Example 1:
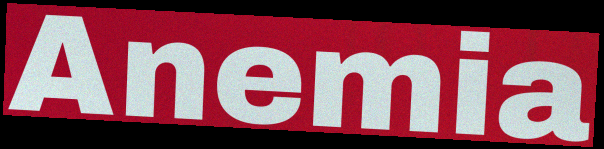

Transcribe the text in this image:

Anemia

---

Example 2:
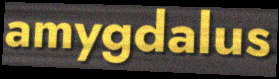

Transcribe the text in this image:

amygdalus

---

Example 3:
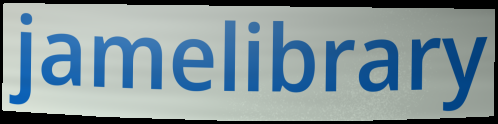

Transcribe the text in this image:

jamelibrary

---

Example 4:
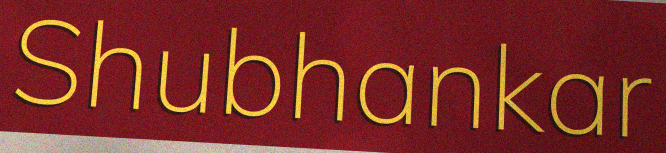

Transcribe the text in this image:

Shubhankar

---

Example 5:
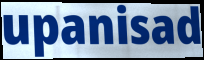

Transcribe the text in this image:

upanisad